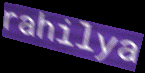
rahilya